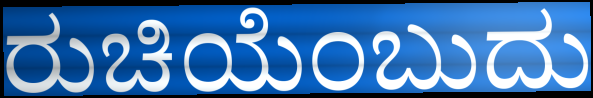
ರುಚಿಯೆಂಬುದು